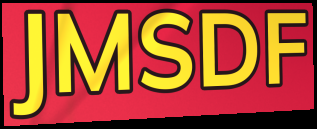
JMSDF